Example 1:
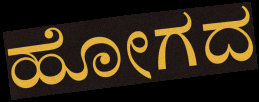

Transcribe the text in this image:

ಹೋಗದ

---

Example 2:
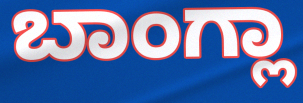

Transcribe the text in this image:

ಬಾಂಗ್ಲಾ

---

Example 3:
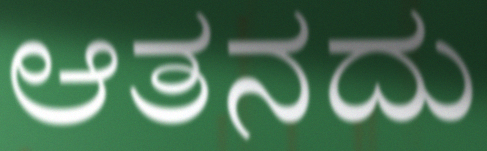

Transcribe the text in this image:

ಆತನದು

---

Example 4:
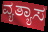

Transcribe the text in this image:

ವ್ಯತ್ಯಾಸ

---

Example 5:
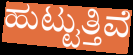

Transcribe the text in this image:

ಹುಟ್ಟುತ್ತಿವೆ